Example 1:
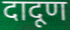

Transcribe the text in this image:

दादूण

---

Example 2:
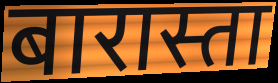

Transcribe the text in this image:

बारास्ता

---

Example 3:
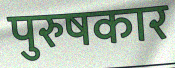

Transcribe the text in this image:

पुरुषकार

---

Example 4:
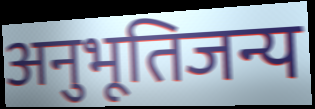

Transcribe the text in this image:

अनुभूतिजन्य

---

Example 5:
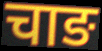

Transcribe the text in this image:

चाङ